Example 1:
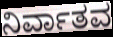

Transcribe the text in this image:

ನಿರ್ವಾತವ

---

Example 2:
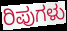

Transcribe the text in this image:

ರಿಪುಗಳು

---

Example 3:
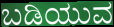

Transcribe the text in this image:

ಬಡಿಯುವ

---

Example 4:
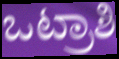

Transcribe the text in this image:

ಒಟ್ರಾಶಿ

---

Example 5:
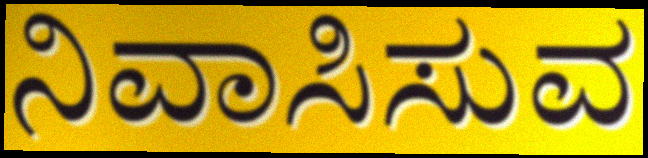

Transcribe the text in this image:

ನಿವಾಸಿಸುವ